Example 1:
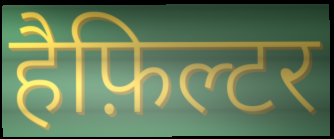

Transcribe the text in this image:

हैफ़िल्टर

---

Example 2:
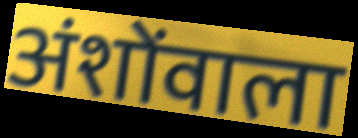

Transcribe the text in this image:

अंशोंवाला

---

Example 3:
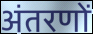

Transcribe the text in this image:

अंतरणों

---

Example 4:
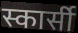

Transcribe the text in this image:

स्कार्सी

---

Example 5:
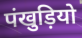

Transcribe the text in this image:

पंखुड़ियो